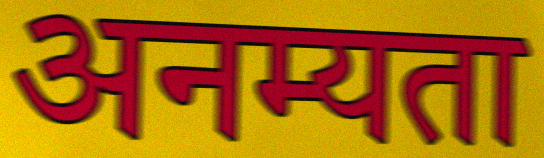
अनम्यता